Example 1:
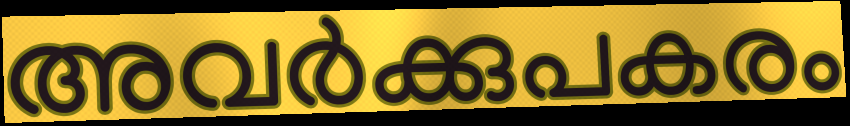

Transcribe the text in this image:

അവർക്കുപകരം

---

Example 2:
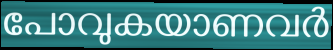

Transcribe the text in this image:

പോവുകയാണവർ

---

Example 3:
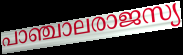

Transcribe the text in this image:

പാഞ്ചാലരാജസ്യ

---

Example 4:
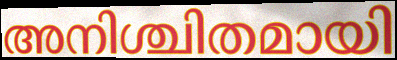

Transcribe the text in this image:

അനിശ്ചിതമായി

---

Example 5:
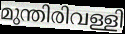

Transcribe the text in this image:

മുന്തിരിവള്ളി